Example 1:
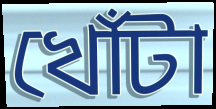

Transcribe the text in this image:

খোঁটা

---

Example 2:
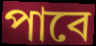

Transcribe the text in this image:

পাবে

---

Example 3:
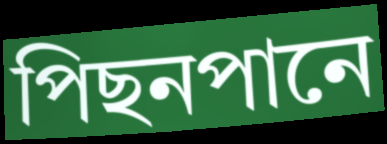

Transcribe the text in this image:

পিছনপানে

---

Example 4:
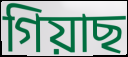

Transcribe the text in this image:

গিয়াছ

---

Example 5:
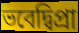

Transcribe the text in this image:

ভবেদ্বিপ্রা